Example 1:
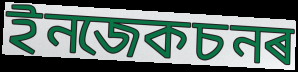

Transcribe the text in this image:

ইনজেকচনৰ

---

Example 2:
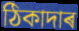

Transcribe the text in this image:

ঠিকাদাৰ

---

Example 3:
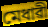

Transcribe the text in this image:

মেধাৱী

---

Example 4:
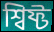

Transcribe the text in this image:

শ্বিফ্ট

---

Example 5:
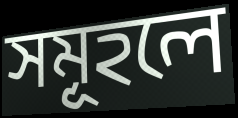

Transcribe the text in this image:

সমূহলে